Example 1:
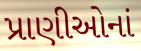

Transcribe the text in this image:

પ્રાણીઓનાં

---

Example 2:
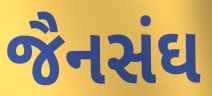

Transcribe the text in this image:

જૈનસંઘ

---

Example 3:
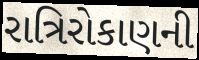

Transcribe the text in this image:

રાત્રિરોકાણની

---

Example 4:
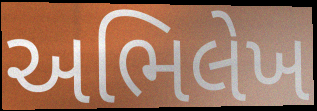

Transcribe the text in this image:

અભિલેખ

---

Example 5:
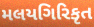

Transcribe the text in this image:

મલયગિરિકૃત